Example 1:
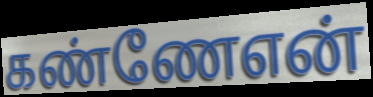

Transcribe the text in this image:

கண்ணேஎன்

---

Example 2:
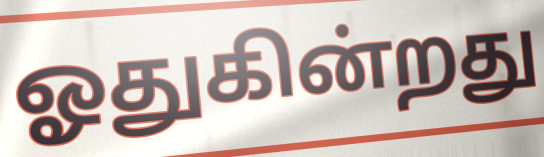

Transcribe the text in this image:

ஓதுகின்றது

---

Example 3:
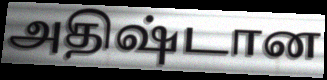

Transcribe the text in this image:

அதிஷ்டான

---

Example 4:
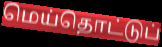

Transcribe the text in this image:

மெய்தொட்டுப்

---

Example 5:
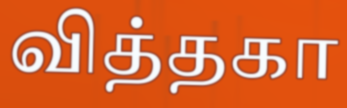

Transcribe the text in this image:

வித்தகா